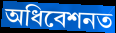
অধিবেশনত